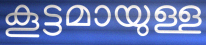
കൂട്ടമായുള്ള